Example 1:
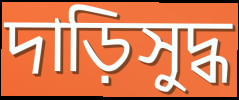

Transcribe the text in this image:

দাড়িসুদ্ধ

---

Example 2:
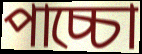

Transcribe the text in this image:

পাচ্চো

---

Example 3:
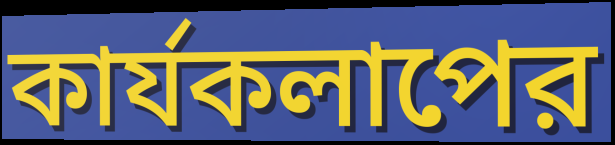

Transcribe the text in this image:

কার্যকলাপের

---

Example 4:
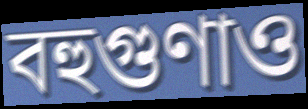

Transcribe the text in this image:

বহুগুণাও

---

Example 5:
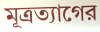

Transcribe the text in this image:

মূত্রত্যাগের